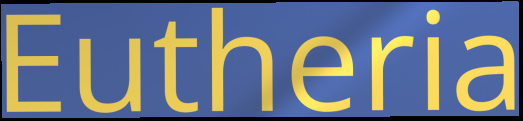
Eutheria